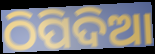
ଠିପିଦିଆ